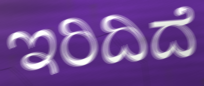
ಇರಿದಿದೆ